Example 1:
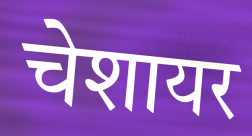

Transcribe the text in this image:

चेशायर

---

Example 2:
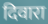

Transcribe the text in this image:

दिवारा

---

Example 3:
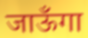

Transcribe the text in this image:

जाऊँगा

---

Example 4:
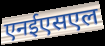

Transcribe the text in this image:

एनईएसएल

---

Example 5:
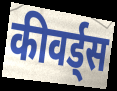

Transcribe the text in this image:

कीवर्ड्स